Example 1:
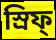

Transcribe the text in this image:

স্রিফ্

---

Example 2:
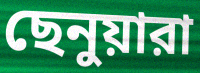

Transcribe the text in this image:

ছেনুয়ারা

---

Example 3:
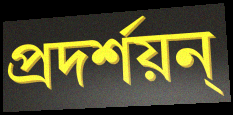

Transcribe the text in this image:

প্রদর্শয়ন্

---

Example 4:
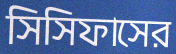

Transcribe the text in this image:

সিসিফাসের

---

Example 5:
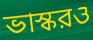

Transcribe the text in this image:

ভাস্করও